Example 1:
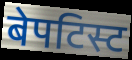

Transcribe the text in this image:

बेपटिस्ट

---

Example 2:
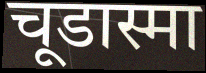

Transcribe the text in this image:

चूडास्मा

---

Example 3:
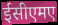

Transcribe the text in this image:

ईसीएमए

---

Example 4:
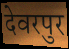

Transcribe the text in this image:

देवरपुर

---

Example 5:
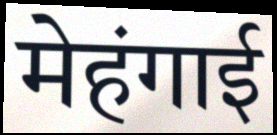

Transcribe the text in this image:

मेहंगाई